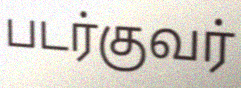
படர்குவர்